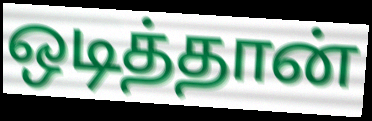
ஒடித்தான்